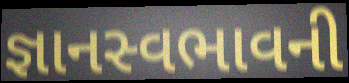
જ્ઞાનસ્વભાવની